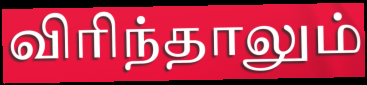
விரிந்தாலும்